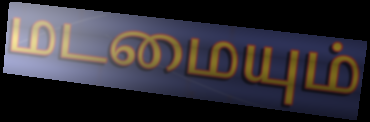
மடமையும்